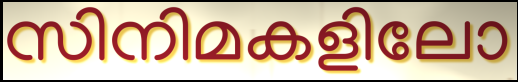
സിനിമകളിലോ